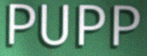
PUPP